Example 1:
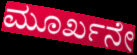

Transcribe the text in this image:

ಮೂರ್ಖನೇ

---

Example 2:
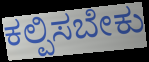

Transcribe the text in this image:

ಕಲ್ಪಿಸಬೇಕು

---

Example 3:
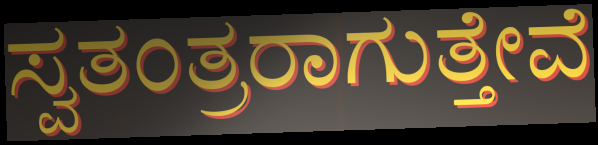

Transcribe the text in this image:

ಸ್ವತಂತ್ರರಾಗುತ್ತೇವೆ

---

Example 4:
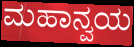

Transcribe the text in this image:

ಮಹಾನ್ವಯ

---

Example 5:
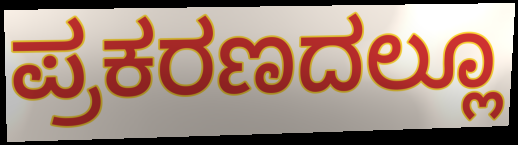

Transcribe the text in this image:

ಪ್ರಕರಣದಲ್ಲೂ